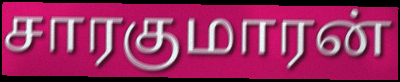
சாரகுமாரன்